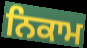
ਨਿਕਾਮ